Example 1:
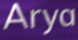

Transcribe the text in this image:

Arya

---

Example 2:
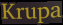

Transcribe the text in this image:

Krupa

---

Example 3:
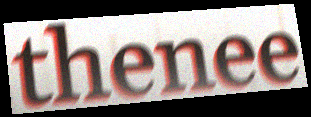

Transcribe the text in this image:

thenee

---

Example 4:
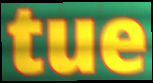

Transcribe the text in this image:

tue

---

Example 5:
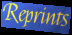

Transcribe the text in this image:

Reprints